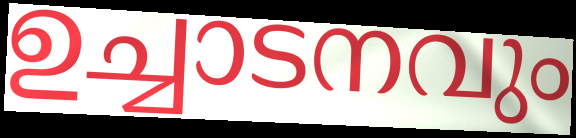
ഉച്ചാടനവും